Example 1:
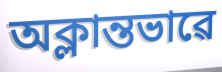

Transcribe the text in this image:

অক্লান্তভাৱে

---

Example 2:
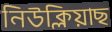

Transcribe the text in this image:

নিউক্লিয়াছ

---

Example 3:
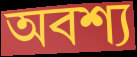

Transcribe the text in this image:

অবশ্য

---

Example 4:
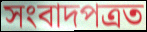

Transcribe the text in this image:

সংবাদপত্ৰত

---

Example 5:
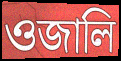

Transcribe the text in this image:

ওজালি